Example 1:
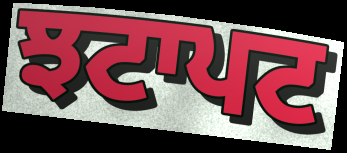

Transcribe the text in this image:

ਝਟਾਪਟ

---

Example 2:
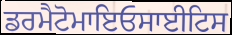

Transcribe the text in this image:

ਡਰਮੈਟੋਮਾਇਓਸਾਈਟਿਸ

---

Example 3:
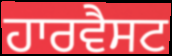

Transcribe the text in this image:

ਹਾਰਵੈਸਟ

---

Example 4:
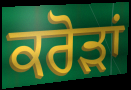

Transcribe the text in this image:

ਕਰੋੜਾਂ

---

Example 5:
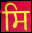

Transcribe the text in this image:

ਸਿ